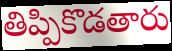
తిప్పికొడతారు